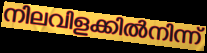
നിലവിളക്കിൽനിന്ന്